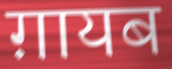
ग़ायब